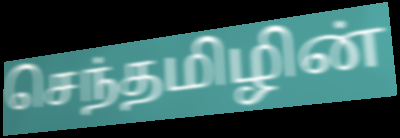
செந்தமிழின்